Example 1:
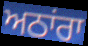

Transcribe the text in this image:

ਅਠਾਂਰਾ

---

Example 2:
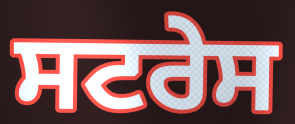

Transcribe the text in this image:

ਸਟਰੇਸ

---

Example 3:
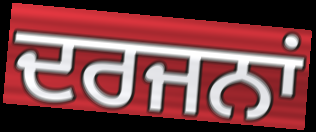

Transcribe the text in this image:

ਦਰਜਨਾਂ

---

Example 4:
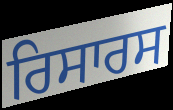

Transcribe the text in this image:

ਰਿਸਾਰਸ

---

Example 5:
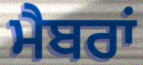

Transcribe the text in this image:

ਮੈਬਰਾਂ